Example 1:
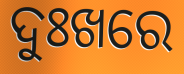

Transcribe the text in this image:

ଦୁଃଖରେ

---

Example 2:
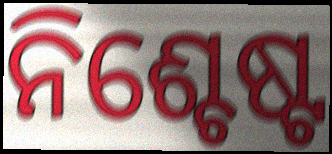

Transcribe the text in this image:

ନିଶ୍ଚେଷ୍ଟ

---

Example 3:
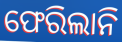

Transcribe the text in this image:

ଫେରିଲାନି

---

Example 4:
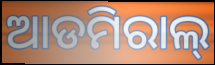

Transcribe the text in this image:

ଆଡମିରାଲ୍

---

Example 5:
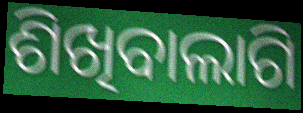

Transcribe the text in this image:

ଶିଖିବାଲାଗି